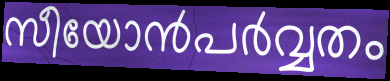
സീയോൻപർവ്വതം